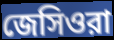
জেসিওরা